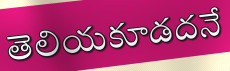
తెలియకూడదనే